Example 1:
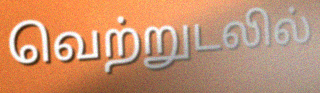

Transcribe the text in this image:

வெற்றுடலில்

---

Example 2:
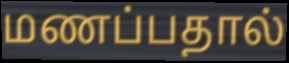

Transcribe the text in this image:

மணப்பதால்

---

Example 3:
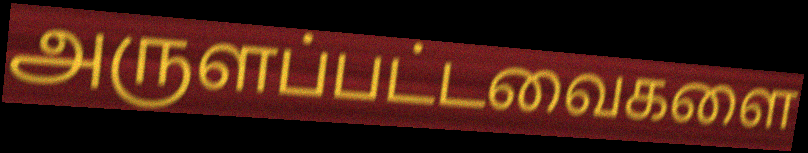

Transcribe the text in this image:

அருளப்பட்டவைகளை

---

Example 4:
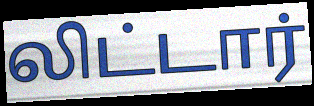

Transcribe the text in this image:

லிட்டார்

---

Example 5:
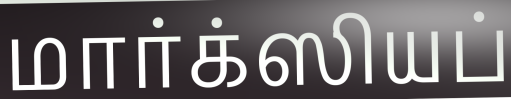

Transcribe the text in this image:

மார்க்ஸியப்